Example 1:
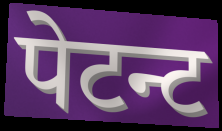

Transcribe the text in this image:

पेटन्ट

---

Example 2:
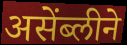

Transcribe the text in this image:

असेंब्लीने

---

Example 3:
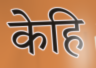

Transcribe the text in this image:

केहि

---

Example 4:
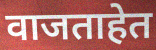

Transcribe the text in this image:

वाजताहेत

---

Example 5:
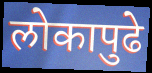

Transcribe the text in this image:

लोकापुढे